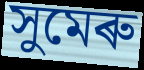
সুমেৰু